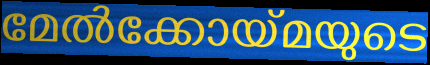
മേൽക്കോയ്മയുടെ